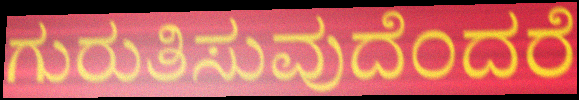
ಗುರುತಿಸುವುದೆಂದರೆ